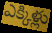
ఎక్కిళ్లు